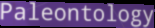
Paleontology